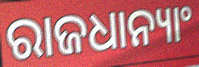
ରାଜଧାନ୍ୟାଂ